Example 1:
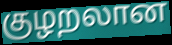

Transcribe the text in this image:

குழறலான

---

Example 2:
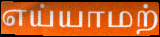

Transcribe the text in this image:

எய்யாமற்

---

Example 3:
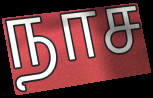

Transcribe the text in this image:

நாச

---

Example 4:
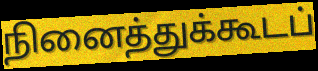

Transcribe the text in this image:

நினைத்துக்கூடப்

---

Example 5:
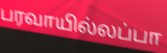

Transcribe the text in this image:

பரவாயில்லப்பா